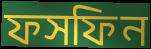
ফসফিন